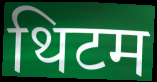
थिटम